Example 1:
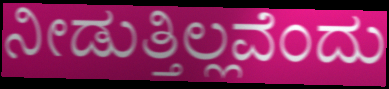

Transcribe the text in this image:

ನೀಡುತ್ತಿಲ್ಲವೆಂದು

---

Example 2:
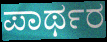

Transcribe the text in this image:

ಪಾರ್ಥರ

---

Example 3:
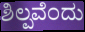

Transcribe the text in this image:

ಶಿಲ್ಪವೆಂದು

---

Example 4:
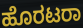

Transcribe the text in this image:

ಹೊರಟರಾ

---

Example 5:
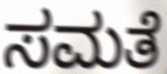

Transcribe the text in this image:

ಸಮತೆ